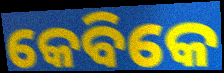
କେବିକେ